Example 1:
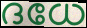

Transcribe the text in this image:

ദധേ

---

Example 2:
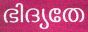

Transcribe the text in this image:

ഭിദ്യതേ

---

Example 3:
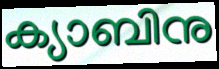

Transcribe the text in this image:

ക്യാബിനു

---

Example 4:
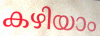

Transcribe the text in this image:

കഴിയാം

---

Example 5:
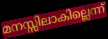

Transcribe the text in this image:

മനസ്സിലാകില്ലെന്ന്